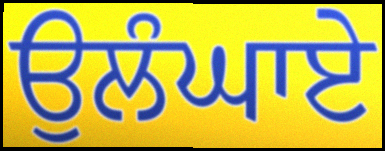
ਉਲੰਘਾਏ